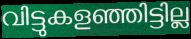
വിട്ടുകളഞ്ഞിട്ടില്ല